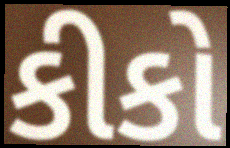
કીકો